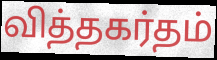
வித்தகர்தம்